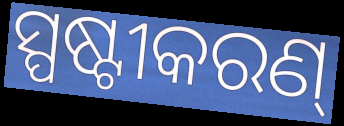
ସ୍ପଷ୍ଟୀକରଣ୍